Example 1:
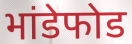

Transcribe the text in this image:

भांडेफोड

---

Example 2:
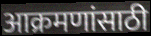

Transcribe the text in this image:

आक्रमणांसाठी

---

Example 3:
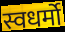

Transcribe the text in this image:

स्वधर्मो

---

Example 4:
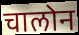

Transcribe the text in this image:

चालोन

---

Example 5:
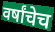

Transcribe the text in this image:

वर्षांचेच